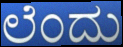
ಲೆಂದು